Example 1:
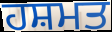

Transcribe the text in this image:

ਹਸ਼ਮਤ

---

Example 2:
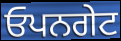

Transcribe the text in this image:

ਓਪਨਗੇਟ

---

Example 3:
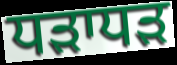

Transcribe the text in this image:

ਧੜਾਧੜ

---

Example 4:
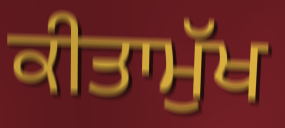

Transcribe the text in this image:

ਕੀਤਾਮੁੱਖ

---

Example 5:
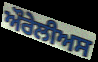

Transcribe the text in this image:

ਔਰੇਲੀਅਸ